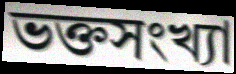
ভক্তসংখ্যা